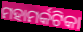
ମହାମର୍କଟିକା